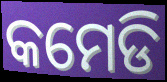
କମେଡି